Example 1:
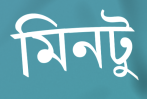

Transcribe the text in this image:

মিনটু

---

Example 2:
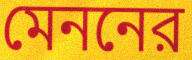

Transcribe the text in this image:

মেননের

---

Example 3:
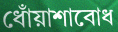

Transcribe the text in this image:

ধোঁয়াশাবোধ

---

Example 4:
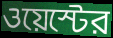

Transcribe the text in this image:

ওয়েস্টের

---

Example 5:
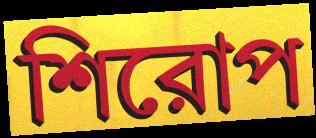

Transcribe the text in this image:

শিরোপ